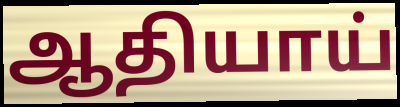
ஆதியாய்